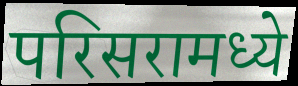
परिसरामध्ये